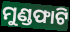
ମୁଣ୍ଡଫାଟି